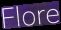
Flore